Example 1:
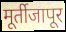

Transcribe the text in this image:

मूर्तीजापूर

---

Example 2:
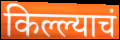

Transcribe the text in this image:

किल्ल्याचं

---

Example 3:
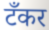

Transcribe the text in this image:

टँकर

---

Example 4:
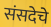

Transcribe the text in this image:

संसदेचे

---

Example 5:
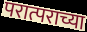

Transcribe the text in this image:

परात्पराच्या